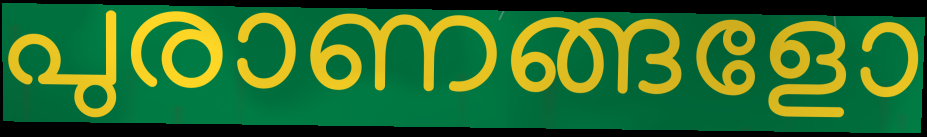
പുരാണങ്ങളോ